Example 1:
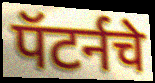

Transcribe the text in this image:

पॅटर्नचे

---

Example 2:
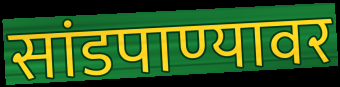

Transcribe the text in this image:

सांडपाण्यावर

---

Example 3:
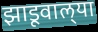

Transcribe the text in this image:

झाडूवाल्या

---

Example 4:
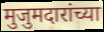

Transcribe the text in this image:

मुजुमदारांच्या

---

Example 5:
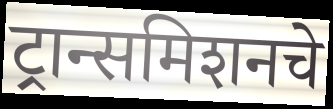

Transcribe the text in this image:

ट्रान्समिशनचे